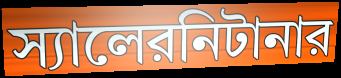
স্যালেরনিটানার